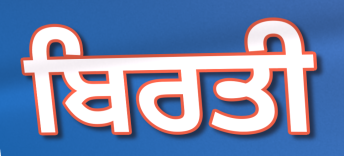
ਬਿਰਤੀ